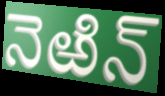
నెఱిన్